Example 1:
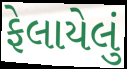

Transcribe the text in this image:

ફેલાયેલું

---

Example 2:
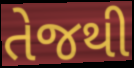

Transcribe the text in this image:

તેજથી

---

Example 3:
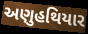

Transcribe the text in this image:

અણુહથિયાર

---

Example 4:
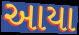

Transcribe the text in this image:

આયા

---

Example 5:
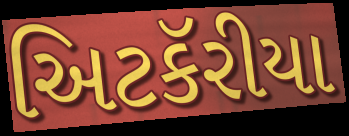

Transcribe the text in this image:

અિટકૅરીયા